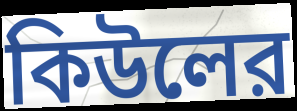
কিউলের